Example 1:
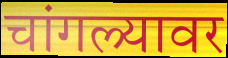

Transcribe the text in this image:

चांगल्यावर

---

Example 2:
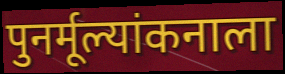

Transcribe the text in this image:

पुनर्मूल्यांकनाला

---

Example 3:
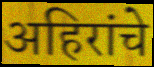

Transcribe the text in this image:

अहिरांचे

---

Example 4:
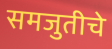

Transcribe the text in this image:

समजुतीचे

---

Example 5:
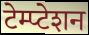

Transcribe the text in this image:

टेम्प्टेशन